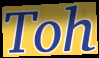
Toh